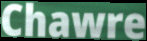
Chawre